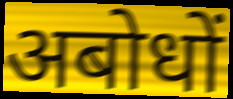
अबोधों